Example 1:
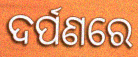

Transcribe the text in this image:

ଦର୍ପଣରେ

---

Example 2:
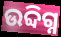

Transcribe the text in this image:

ଉବ୍ଦିଗ୍ନ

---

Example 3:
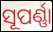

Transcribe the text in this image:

ସୂପର୍ଣ୍ଣା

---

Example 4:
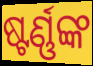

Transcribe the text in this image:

ଷ୍ଟର୍ଣ୍ଣଙ୍କ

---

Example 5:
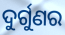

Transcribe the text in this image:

ଦୁର୍ଗୁଣର